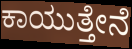
ಕಾಯುತ್ತೇನೆ